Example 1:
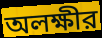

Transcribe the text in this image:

অলক্ষীর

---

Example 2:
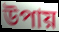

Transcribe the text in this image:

উপায়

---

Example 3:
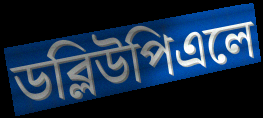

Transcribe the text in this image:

ডব্লিউপিএলে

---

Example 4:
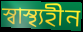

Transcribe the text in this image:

স্বাস্থ্যহীন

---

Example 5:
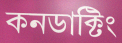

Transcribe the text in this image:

কনডাক্টিং